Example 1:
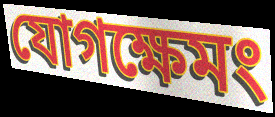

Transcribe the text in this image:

যোগক্ষেমং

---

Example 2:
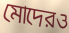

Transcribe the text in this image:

মোদেরও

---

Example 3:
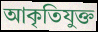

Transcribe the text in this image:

আকৃতিযুক্ত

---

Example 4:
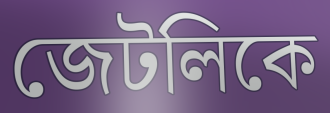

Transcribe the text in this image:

জেটলিকে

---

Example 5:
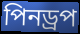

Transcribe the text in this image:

পিনড্রপ